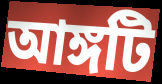
আঙ্গটি